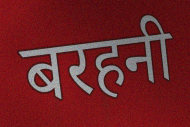
बरहनी